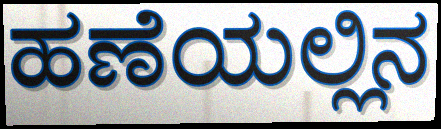
ಹಣೆಯಲ್ಲಿನ